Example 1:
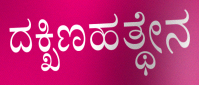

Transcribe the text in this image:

ದಕ್ಖಿಣಹತ್ಥೇನ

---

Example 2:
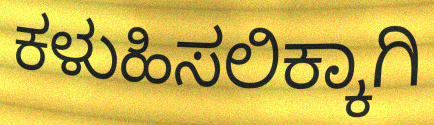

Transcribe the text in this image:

ಕಳುಹಿಸಲಿಕ್ಕಾಗಿ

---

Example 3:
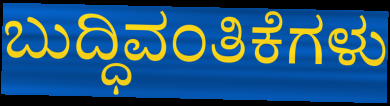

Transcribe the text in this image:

ಬುದ್ಧಿವಂತಿಕೆಗಳು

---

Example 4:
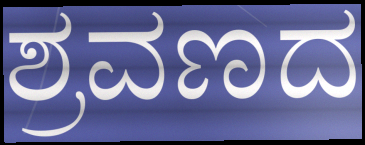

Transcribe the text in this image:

ಶ್ರವಣದ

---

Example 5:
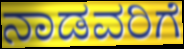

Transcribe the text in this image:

ನಾಡವರಿಗೆ